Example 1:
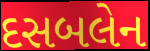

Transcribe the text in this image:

દસબલેન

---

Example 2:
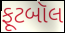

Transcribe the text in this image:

ફૂટબૉલ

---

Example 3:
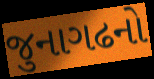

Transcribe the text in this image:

જુનાગઢનો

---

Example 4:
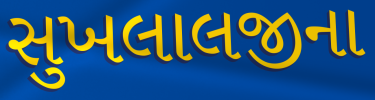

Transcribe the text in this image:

સુખલાલજીના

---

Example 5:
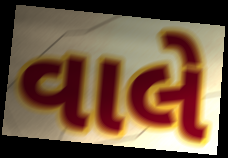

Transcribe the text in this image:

વાલે